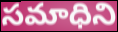
సమాధిని